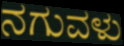
ನಗುವಳು